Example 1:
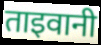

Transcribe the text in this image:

ताइवानी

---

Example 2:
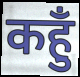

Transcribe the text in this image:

कहुँ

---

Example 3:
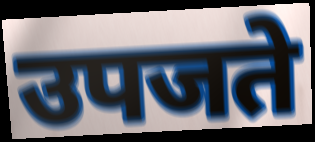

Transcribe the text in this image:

उपजते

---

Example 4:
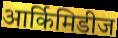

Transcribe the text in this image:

आर्किमिडीज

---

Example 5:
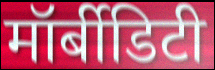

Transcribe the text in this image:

मॉर्बीडिटी